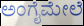
ಅಂಗೈಮೇಲೆ